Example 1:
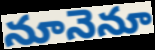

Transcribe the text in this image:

నూనెనూ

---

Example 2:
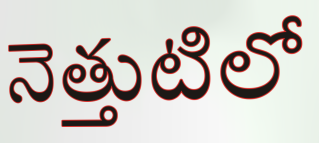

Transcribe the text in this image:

నెత్తుటిలో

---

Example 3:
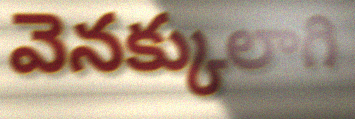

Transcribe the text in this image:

వెనక్కులాగి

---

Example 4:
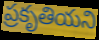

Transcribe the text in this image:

ప్రకృతియని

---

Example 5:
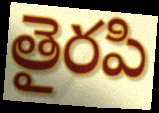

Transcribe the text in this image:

తైరపి